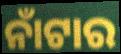
ନାଁଟାର